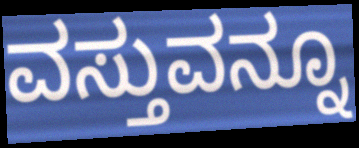
ವಸ್ತುವನ್ನೂ